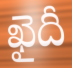
ఖైదీ